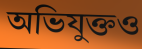
অভিযুক্তও